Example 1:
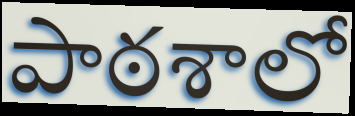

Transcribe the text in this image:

పాఠశాలో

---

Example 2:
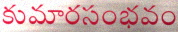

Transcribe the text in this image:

కుమారసంభవం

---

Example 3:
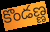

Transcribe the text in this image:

కొండణ్ణ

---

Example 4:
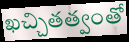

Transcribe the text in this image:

ఖచ్చితత్వంతో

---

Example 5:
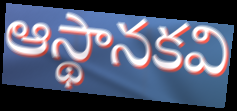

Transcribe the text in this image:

ఆస్థానకవి